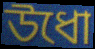
উধো